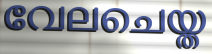
വേലചെയ്ത